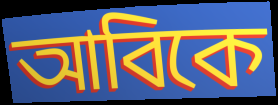
আবিকে